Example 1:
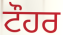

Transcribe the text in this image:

ਟੌਹਰ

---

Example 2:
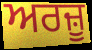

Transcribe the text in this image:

ਅਰਜ਼ੂ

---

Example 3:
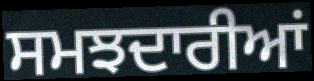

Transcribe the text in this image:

ਸਮਝਦਾਰੀਆਂ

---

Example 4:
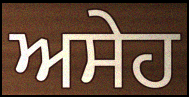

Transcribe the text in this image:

ਅਸੇਹ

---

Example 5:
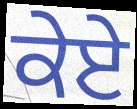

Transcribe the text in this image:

ਕੇਏ